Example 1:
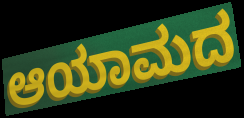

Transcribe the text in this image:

ಆಯಾಮದ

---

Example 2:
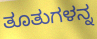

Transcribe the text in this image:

ತೂತುಗಳನ್ನ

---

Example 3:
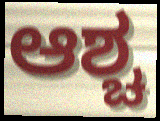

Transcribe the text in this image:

ಆಶ್ಚ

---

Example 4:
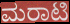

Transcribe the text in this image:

ಮರಾಟಿ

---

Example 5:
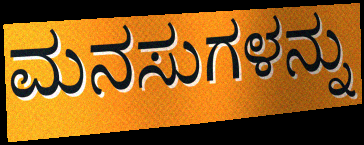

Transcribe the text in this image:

ಮನಸುಗಳನ್ನು